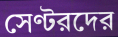
সেণ্টরদের